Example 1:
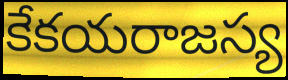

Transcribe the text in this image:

కేకయరాజస్య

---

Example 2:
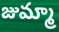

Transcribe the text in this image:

జుమ్మా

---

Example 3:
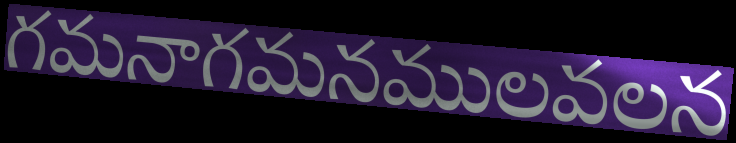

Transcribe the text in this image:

గమనాగమనములవలన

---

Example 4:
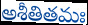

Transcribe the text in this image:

అశీతితమః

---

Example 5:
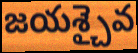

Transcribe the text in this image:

జయశ్చైవ